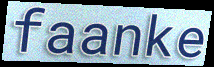
faanke